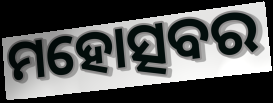
ମହୋତ୍ସବର